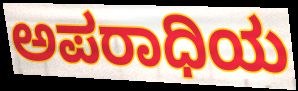
ಅಪರಾಧಿಯ